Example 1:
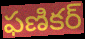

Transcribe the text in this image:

ఫణికర్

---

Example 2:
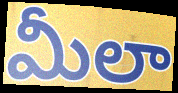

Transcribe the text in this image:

మీలా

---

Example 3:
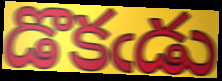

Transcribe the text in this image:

డొకఁడు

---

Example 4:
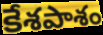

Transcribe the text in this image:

కేశపాశం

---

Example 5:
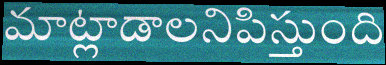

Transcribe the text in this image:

మాట్లాడాలనిపిస్తుంది